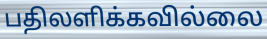
பதிலளிக்கவில்லை